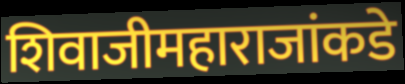
शिवाजीमहाराजांकडे